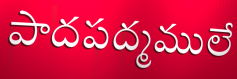
పాదపద్మములే